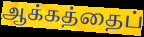
ஆக்கத்தைப்